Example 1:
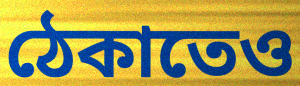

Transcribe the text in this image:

ঠেকাতেও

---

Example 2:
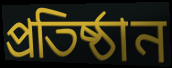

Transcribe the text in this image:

প্রতিষ্ঠান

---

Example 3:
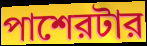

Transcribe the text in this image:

পাশেরটার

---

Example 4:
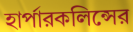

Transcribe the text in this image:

হার্পারকলিন্সের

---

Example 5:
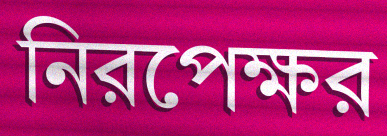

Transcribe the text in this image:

নিরপেক্ষর